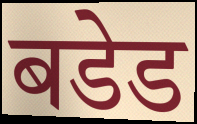
बडेड